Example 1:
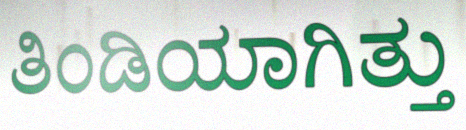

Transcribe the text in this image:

ತಿಂಡಿಯಾಗಿತ್ತು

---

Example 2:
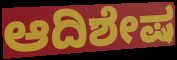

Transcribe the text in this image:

ಆದಿಶೇಷ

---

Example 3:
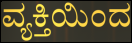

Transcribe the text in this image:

ವ್ಯಕ್ತಿಯಿಂದ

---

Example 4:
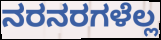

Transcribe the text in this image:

ನರನರಗಳೆಲ್ಲ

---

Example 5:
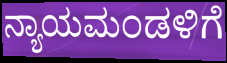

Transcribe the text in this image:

ನ್ಯಾಯಮಂಡಳಿಗೆ